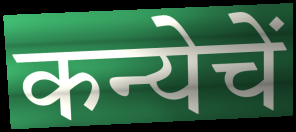
कन्येचें